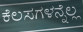
ಕೆಲಸಗಳನ್ನೆಲ್ಲ